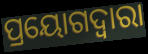
ପ୍ରୟୋଗଦ୍ଵାରା